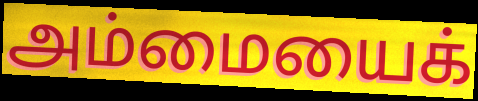
அம்மையைக்